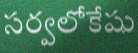
సర్వలోకేషు